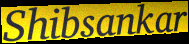
Shibsankar